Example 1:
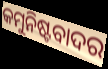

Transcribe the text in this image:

କମୁନିଷ୍ଟବାଦର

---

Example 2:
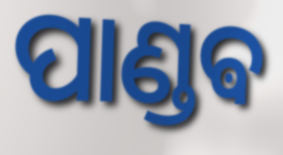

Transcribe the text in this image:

ପାଣ୍ଡଵ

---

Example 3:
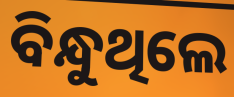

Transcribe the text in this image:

ବିନ୍ଧୁଥିଲେ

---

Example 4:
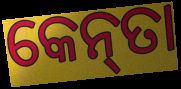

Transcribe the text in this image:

କେନ୍‌ତା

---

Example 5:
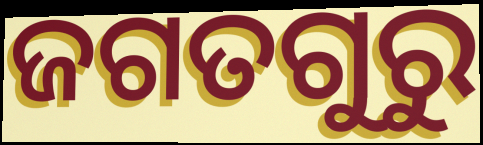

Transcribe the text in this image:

ଜଗତଗୁରୁ